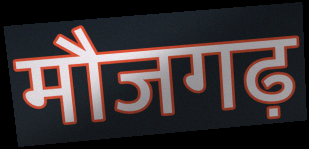
मौजगढ़